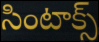
సింటాక్స్